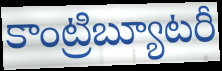
కాంట్రిబ్యూటరీ